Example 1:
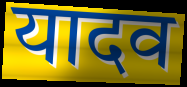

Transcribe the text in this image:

यादव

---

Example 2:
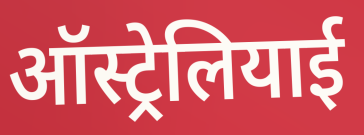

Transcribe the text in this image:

ऑस्ट्रेलियाई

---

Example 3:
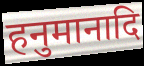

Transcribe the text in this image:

हनुमानादि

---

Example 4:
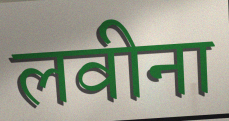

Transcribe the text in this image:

लवीना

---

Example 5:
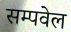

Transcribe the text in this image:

सम्पवेल